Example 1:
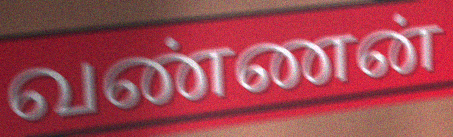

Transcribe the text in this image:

வண்ணன்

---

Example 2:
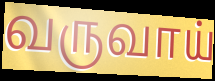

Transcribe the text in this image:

வருவாய்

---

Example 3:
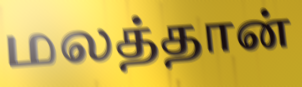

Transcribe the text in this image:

மலத்தான்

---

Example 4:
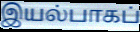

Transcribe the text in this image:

இயல்பாகப்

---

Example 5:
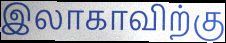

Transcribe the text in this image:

இலாகாவிற்கு